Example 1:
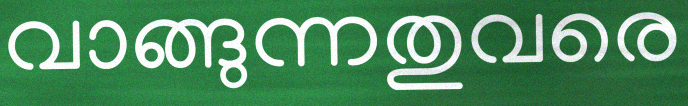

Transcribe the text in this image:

വാങ്ങുന്നതുവരെ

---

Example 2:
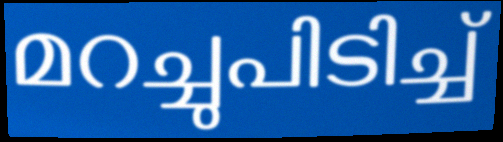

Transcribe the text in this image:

മറച്ചുപിടിച്ച്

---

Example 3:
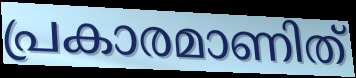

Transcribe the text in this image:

പ്രകാരമാണിത്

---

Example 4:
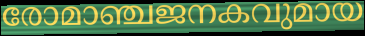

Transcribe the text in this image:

രോമാഞ്ചജനകവുമായ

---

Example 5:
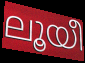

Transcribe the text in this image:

ലൂയീ